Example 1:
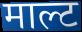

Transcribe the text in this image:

माल्ट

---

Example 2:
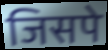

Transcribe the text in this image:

जिसपे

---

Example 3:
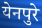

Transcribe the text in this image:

येनपुरे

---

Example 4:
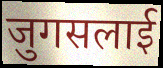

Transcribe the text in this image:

जुगसलाई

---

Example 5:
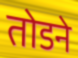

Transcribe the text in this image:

तोडने